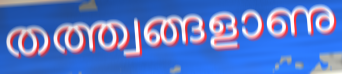
തത്ത്വങ്ങളാണു